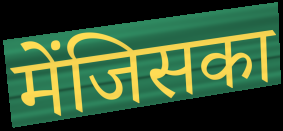
मेंजिसका